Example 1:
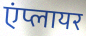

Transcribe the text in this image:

एंप्लायर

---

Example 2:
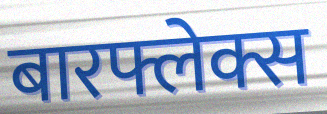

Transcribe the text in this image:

बारफ्लेक्स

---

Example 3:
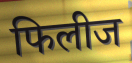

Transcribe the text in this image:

फिलीज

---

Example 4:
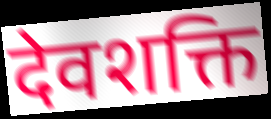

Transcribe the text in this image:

देवशक्ति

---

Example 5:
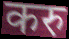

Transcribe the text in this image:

करु